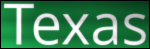
Texas